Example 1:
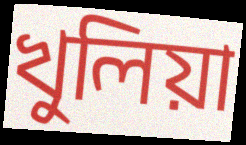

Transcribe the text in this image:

খুলিয়া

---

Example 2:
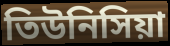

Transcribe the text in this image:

তিউনিসিয়া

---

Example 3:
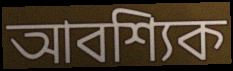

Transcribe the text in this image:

আবশ্যিক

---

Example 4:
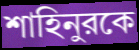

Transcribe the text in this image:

শাহিনুরকে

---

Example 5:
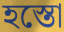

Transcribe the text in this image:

হস্তো